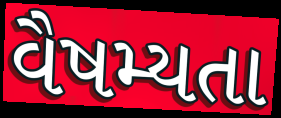
વૈષમ્યતા